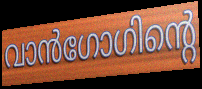
വാൻഗോഗിന്റെ